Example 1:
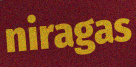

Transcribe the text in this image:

niragas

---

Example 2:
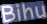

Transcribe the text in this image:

Bihu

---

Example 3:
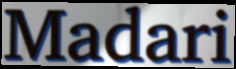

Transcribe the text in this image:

Madari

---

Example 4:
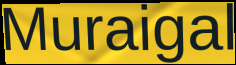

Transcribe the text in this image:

Muraigal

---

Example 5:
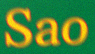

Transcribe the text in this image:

Sao